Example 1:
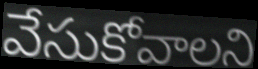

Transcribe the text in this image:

వేసుకోవాలని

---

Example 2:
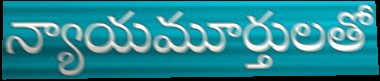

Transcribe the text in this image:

న్యాయమూర్తులతో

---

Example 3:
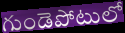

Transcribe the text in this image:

గుండెపోటులో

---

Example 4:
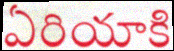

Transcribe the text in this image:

ఏరియాకి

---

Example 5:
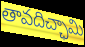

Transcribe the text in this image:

తావదిచ్ఛామి